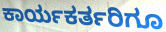
ಕಾರ್ಯಕರ್ತರಿಗೂ